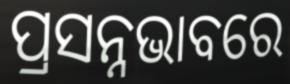
ପ୍ରସନ୍ନଭାବରେ